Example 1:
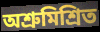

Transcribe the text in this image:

অশ্রুমিশ্রিত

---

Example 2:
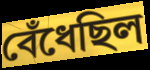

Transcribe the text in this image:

বেঁধেছিল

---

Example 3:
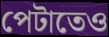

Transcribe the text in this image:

পেটাতেও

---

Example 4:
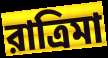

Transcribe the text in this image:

রাত্রিমা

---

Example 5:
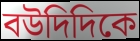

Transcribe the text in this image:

বউদিদিকে